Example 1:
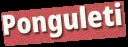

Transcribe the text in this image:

Ponguleti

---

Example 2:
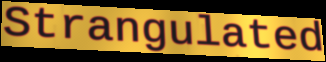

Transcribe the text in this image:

Strangulated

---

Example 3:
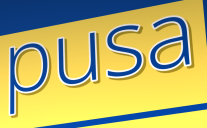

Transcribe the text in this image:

pusa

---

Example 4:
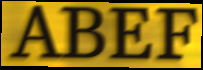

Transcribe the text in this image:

ABEF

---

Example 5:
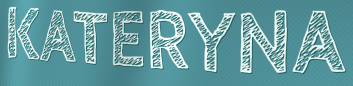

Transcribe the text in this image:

KATERYNA